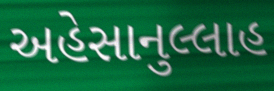
અહેસાનુલ્લાહ